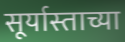
सूर्यास्ताच्या